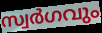
സ്വർഗവും